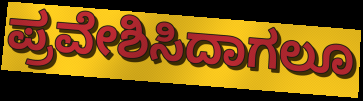
ಪ್ರವೇಶಿಸಿದಾಗಲೂ